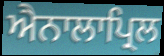
ਐਨਾਲਾਪ੍ਰਿਲ